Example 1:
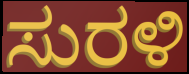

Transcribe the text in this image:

ಸುರಳಿ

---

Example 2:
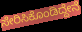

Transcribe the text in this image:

ಸೇರಿಸಿಕೊಂಡಿದ್ದೇನೆ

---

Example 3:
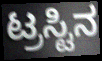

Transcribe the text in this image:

ಟ್ರಸ್ಟಿನ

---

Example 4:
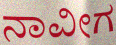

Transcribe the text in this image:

ನಾವೀಗ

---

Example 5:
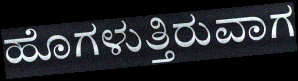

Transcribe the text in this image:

ಹೊಗಳುತ್ತಿರುವಾಗ